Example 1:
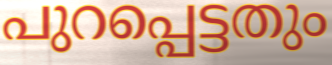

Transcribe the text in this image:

പുറപ്പെട്ടതും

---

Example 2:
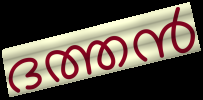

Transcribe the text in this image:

ദത്തൻ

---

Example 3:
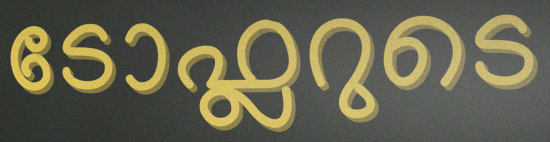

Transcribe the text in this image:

ടോഫ്ലറുടെ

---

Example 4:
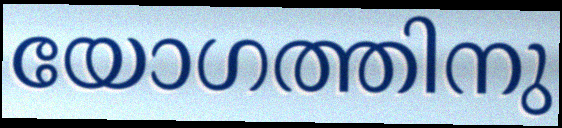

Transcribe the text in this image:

യോഗത്തിനു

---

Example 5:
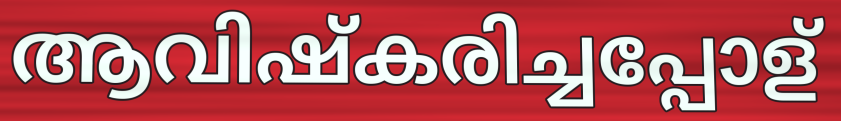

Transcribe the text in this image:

ആവിഷ്കരിച്ചപ്പോള്